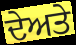
ਦੇਅਤੇ